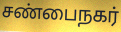
சண்பைநகர்